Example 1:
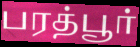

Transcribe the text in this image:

பரத்பூர்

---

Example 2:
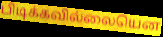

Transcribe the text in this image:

பிடிக்கவில்லையென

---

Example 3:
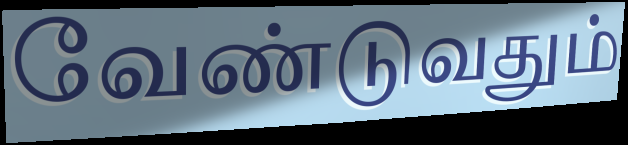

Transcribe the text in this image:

வேண்டுவதும்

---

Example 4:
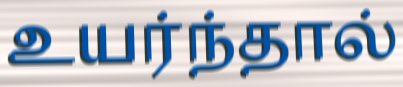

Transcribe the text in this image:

உயர்ந்தால்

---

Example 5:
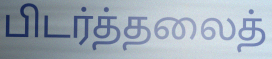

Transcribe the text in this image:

பிடர்த்தலைத்